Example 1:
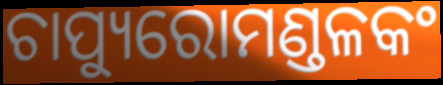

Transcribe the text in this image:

ଚାପ୍ୟୁରୋମଣ୍ଡଳକଂ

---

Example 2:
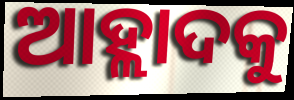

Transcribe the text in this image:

ଆହ୍ଲାଦକୁ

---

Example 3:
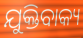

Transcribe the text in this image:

ଯୁକ୍ତିବାକ୍ୟ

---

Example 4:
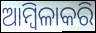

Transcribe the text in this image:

ଆମ୍ବିଳାକରି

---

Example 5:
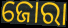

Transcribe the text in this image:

ଜୋରା